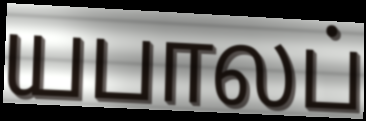
யபாலப்